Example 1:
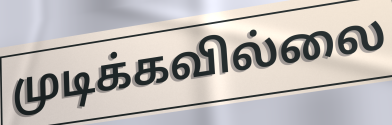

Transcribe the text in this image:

முடிக்கவில்லை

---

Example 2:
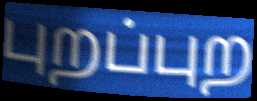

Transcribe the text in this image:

புறப்புற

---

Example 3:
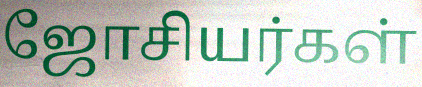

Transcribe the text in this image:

ஜோசியர்கள்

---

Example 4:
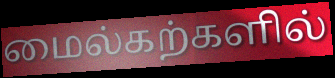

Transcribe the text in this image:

மைல்கற்களில்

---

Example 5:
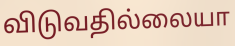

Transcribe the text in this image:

விடுவதில்லையா